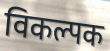
विकल्पक